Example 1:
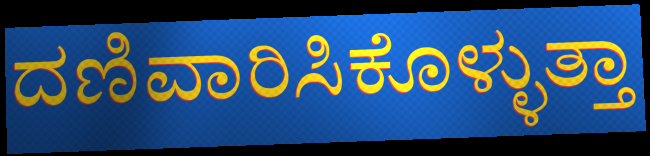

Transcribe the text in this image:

ದಣಿವಾರಿಸಿಕೊಳ್ಳುತ್ತಾ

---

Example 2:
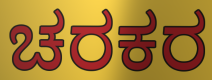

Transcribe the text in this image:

ಚರಕರ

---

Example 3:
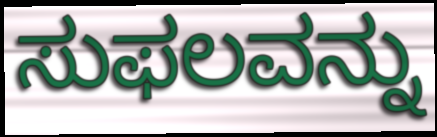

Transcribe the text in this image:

ಸುಫಲವನ್ನು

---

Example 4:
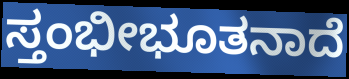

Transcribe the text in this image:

ಸ್ತಂಭೀಭೂತನಾದೆ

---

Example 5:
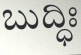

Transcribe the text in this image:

ಬುದ್ಧಿಃ